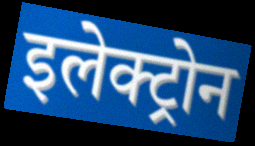
इलेक्ट्रोन